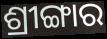
ଶ୍ରୀଙ୍ଗାର